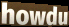
howdu